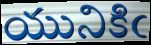
యునికిఁ